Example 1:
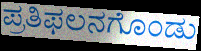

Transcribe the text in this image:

ಪ್ರತಿಫಲನಗೊಂಡು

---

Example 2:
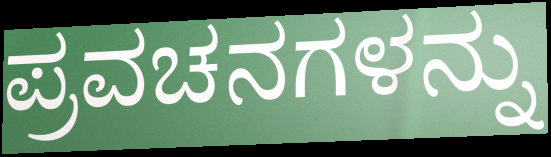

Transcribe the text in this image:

ಪ್ರವಚನಗಳನ್ನು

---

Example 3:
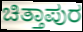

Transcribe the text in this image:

ಚಿತ್ತಾಪುರ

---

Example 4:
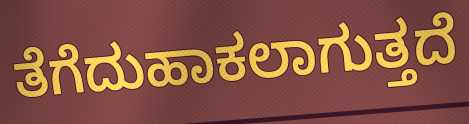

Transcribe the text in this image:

ತೆಗೆದುಹಾಕಲಾಗುತ್ತದೆ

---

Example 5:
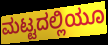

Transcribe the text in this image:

ಮಟ್ಟದಲ್ಲಿಯೂ